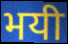
भयी